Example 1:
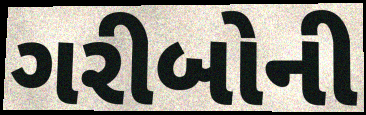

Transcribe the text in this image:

ગરીબોની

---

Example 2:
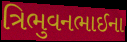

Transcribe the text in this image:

ત્રિભુવનભાઈના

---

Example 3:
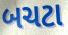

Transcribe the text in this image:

બચટા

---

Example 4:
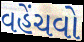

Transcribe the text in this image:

વહેંચવો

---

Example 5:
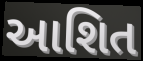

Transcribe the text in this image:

આશિત